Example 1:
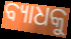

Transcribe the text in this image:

ବ୍ୟାଧକୁ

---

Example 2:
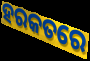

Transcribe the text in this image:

ହରକତରେ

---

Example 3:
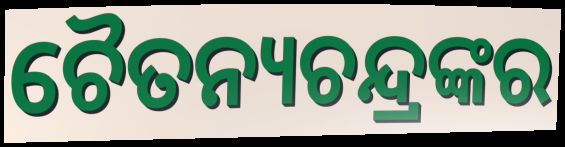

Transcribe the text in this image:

ଚୈତନ୍ୟଚନ୍ଦ୍ରଙ୍କର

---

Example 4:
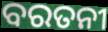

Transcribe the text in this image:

ବରତନୀ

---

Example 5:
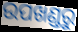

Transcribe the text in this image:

ଉପଖଣ୍ଡରୁ